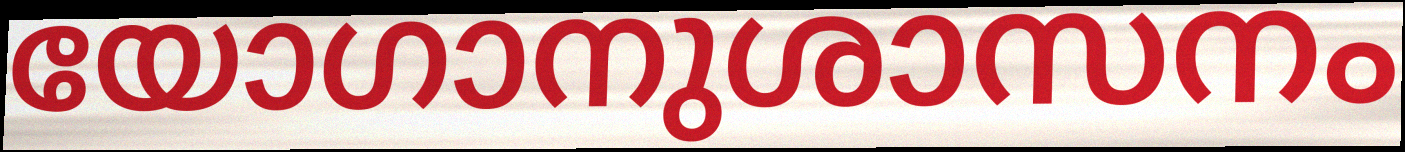
യോഗാനുശാസനം